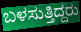
ಬಳಸುತ್ತಿದ್ದರು